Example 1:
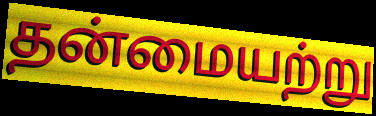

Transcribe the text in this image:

தன்மையற்று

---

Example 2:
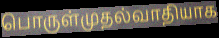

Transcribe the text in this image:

பொருள்முதல்வாதியாக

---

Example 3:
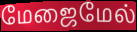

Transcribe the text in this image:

மேஜைமேல்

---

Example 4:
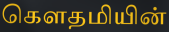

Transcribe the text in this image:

கெளதமியின்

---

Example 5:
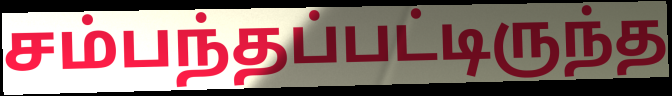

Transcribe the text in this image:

சம்பந்தப்பட்டிருந்த